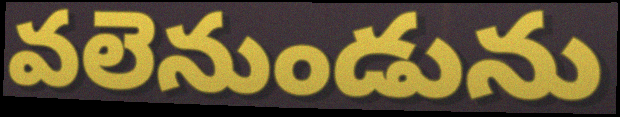
వలెనుండును